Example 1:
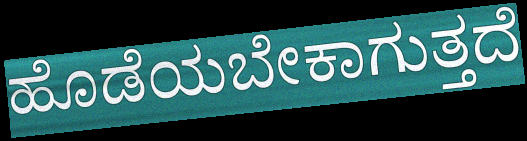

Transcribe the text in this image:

ಹೊಡೆಯಬೇಕಾಗುತ್ತದೆ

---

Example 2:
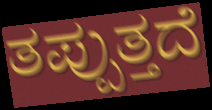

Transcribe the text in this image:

ತಪ್ಪುತ್ತದೆ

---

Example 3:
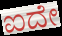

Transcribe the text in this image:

ಐದೇ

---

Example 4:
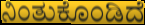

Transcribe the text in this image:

ನಿಂತುಕೊಂಡಿದೆ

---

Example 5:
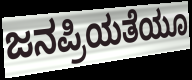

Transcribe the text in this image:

ಜನಪ್ರಿಯತೆಯೂ